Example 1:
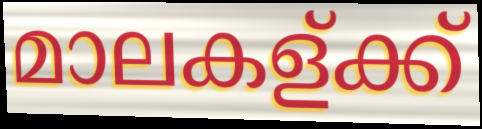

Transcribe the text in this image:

മാലകള്ക്ക്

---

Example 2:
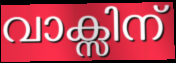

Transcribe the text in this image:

വാക്സിന്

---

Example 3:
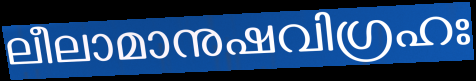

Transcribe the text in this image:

ലീലാമാനുഷവിഗ്രഹഃ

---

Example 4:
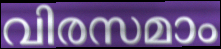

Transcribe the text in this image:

വിരസമാം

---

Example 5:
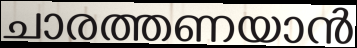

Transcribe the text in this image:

ചാരത്തണയാൻ